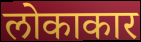
लोकाकार